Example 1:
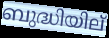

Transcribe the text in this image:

ബുദ്ധിയില്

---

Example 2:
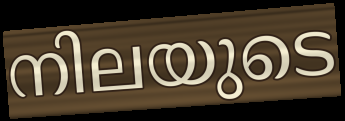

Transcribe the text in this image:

നിലയുടെ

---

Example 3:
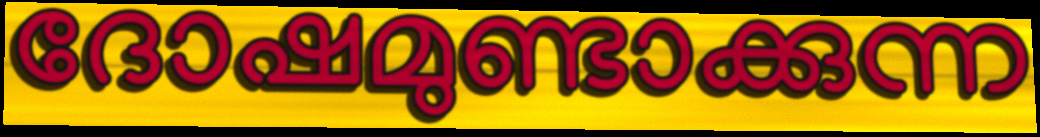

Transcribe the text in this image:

ദോഷമുണ്ടാക്കുന്ന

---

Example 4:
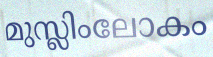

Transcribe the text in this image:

മുസ്ലിംലോകം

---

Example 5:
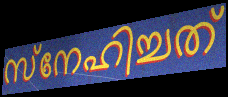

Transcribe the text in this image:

സ്‌നേഹിച്ചത്